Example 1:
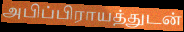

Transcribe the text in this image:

அபிப்பிராயத்துடன்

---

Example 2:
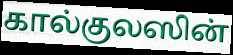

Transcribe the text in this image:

கால்குலஸின்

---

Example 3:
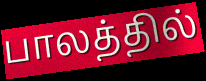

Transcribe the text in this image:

பாலத்தில்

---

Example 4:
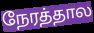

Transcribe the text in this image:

நேரத்தால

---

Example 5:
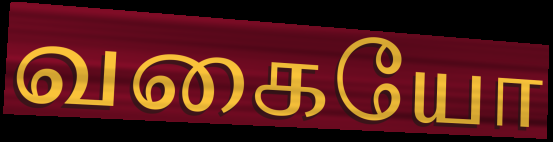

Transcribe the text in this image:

வகையோ